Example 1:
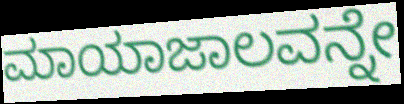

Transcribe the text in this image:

ಮಾಯಾಜಾಲವನ್ನೇ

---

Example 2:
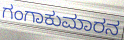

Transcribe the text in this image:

ಗಂಗಾಕುಮಾರನ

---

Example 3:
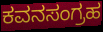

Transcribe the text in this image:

ಕವನಸಂಗ್ರಹ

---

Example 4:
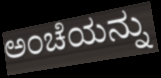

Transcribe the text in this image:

ಅಂಚೆಯನ್ನು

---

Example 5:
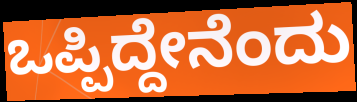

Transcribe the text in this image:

ಒಪ್ಪಿದ್ದೇನೆಂದು